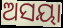
ଅସୟା